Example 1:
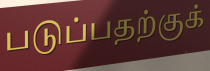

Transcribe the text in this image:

படுப்பதற்குக்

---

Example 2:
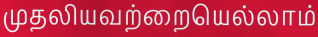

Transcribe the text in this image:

முதலியவற்றையெல்லாம்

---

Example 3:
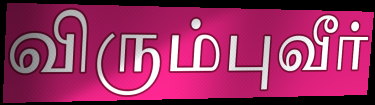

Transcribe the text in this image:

விரும்புவீர்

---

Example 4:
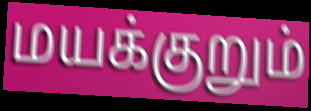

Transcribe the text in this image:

மயக்குறும்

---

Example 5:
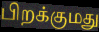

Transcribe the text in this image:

பிறக்குமது